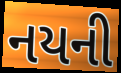
નયની